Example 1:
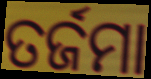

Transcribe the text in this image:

ତର୍ଜମା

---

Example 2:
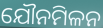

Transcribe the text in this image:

ଯୌନମିଳନ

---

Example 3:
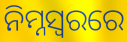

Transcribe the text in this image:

ନିମ୍ନସ୍ଵରରେ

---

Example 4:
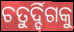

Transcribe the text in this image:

ଚତୁର୍ଦ୍ଦିଗକୁ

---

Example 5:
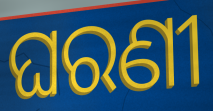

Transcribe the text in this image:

ଘରଣୀ